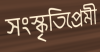
সংস্কৃতিপ্রেমী